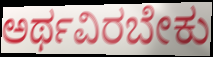
ಅರ್ಥವಿರಬೇಕು